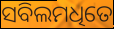
ସବିଲମଧିତେ